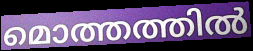
മൊത്തത്തിൽ